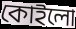
কোইলো